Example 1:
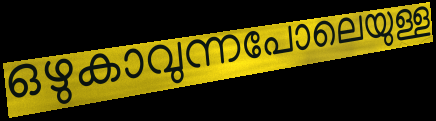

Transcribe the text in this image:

ഒഴുകാവുന്നപോലെയുള്ള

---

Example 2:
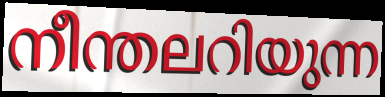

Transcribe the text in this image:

നീന്തലറിയുന്ന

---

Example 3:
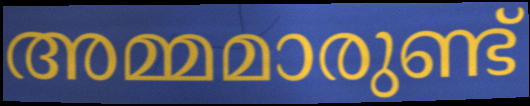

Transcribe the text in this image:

അമ്മമാരുണ്ട്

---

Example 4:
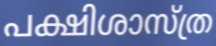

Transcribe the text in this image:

പക്ഷിശാസ്ത്ര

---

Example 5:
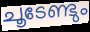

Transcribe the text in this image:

ചൂടേണ്ടും